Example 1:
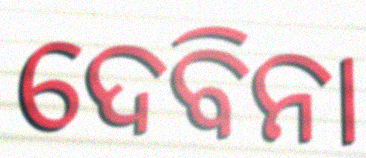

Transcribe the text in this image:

ଦେବିନା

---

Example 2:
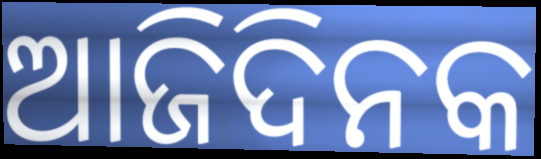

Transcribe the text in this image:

ଆଜିଦିନକ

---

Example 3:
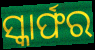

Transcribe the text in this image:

ସ୍କାର୍ଫର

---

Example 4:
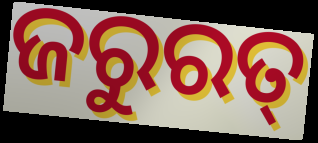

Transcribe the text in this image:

ଜରୁରତ୍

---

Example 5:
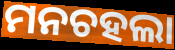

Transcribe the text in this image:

ମନଚହଲା